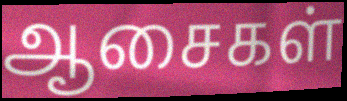
ஆசைகள்